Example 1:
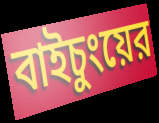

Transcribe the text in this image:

বাইচুংয়ের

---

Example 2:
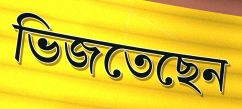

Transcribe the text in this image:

ভিজতেছেন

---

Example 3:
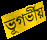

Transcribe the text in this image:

ভূগর্ভীয়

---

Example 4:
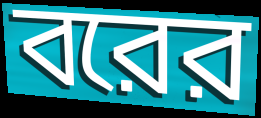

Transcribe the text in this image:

বরের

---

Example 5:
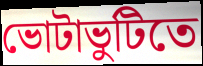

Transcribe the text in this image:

ভোটাভুটিতে